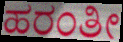
ಹರಂತೀ